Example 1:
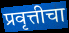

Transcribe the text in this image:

प्रवृत्तीचा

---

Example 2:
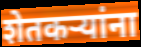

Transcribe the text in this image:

शेतकर्‍यांना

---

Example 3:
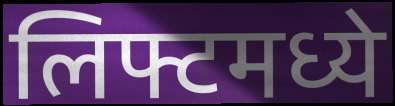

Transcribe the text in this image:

लिफ्टमध्ये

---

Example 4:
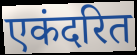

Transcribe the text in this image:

एकंदरित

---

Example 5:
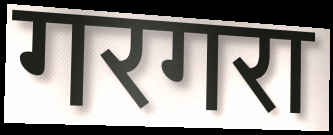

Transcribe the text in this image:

गरगरा